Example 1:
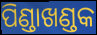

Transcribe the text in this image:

ପିଣ୍ଡାଖଣ୍ଡକ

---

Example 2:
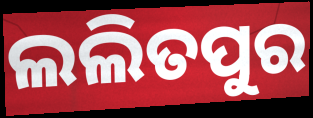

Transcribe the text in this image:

ଲଲିତପୁର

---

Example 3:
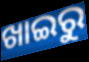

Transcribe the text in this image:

ଖାଇରୁ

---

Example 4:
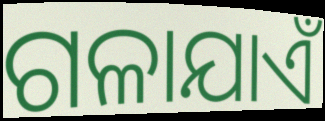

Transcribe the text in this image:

ଗଳାଯାଏଁ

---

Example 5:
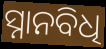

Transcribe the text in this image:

ସ୍ନାନବିଧି